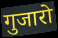
गुजारो